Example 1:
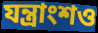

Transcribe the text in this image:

যন্ত্রাংশও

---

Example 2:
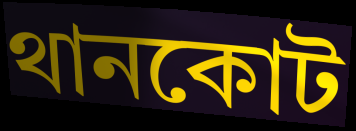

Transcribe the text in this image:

থানকোট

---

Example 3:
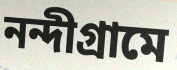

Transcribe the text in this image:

নন্দীগ্রামে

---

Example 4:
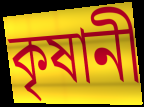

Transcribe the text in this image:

কৃষানী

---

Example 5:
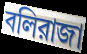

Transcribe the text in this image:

বলিরাজা